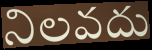
నిలవదు